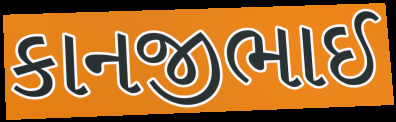
કાનજીભાઈ